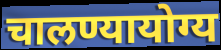
चालण्यायोग्य